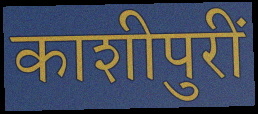
काशीपुरीं